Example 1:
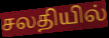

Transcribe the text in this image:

சலதியில்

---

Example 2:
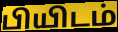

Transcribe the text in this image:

பியிடம்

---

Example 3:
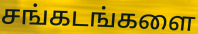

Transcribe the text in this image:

சங்கடங்களை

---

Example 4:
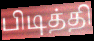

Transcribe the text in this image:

பிடித்தி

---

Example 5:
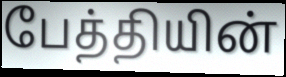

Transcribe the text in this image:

பேத்தியின்